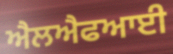
ਐਲਐਫਆਈ